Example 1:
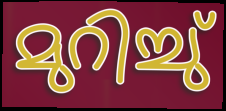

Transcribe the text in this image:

മുറിച്ചു്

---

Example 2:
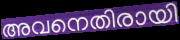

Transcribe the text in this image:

അവനെതിരായി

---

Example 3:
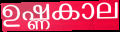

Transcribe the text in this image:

ഉഷ്ണകാല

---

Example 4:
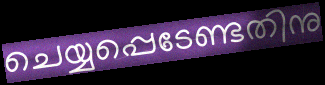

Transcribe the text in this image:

ചെയ്യപ്പെടേണ്ടതിനു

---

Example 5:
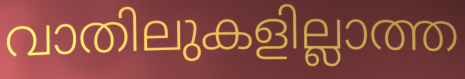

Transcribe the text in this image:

വാതിലുകളില്ലാത്ത